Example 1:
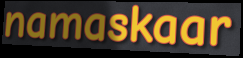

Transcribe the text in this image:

namaskaar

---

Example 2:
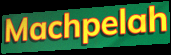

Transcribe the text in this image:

Machpelah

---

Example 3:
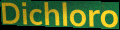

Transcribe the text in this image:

Dichloro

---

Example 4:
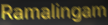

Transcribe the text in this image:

Ramalingam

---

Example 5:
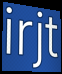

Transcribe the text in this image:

irjt